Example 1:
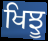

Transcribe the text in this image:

ਖਿਝੂ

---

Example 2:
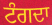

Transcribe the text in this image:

ਟੰਗਦਾ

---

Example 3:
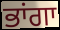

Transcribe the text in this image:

ਭਾਂਗਾ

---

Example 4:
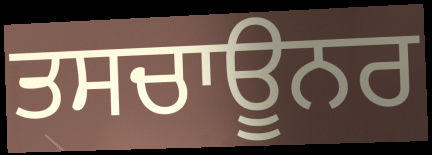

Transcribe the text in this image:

ਤਸਚਾਊਨਰ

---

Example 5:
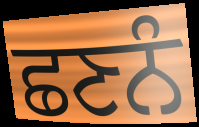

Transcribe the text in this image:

ਛਣਨੰ